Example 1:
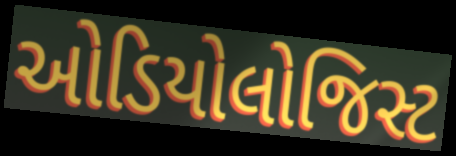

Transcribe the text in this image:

ઓડિયોલોજિસ્ટ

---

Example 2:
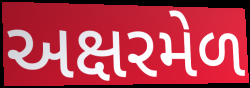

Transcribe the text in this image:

અક્ષરમેળ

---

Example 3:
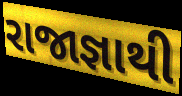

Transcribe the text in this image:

રાજાજ્ઞાથી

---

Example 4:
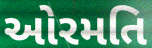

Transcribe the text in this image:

ઓરમતિ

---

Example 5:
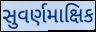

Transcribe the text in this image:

સુવર્ણમાક્ષિક